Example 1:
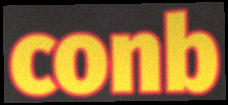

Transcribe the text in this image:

conb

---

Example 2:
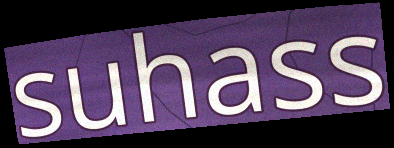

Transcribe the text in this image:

suhass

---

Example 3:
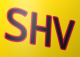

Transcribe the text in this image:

SHV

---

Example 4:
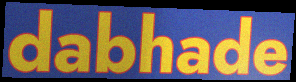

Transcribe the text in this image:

dabhade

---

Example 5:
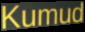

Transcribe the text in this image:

Kumud